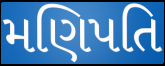
મણિપતિ